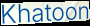
Khatoon